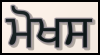
ਮੋਖਸ